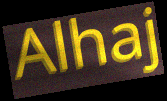
Alhaj